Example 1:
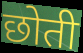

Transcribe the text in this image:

छोती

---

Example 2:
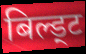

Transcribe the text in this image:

बिल्ड्ट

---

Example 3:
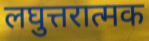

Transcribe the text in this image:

लघुत्तरात्मक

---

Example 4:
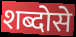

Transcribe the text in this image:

शब्दोसे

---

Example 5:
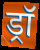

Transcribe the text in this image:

ड्रॉ